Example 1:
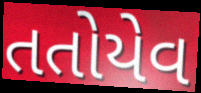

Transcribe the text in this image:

તતોયેવ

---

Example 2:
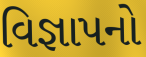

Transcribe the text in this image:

વિજ્ઞાપનો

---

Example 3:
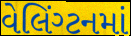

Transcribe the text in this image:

વેલિંગ્ટનમાં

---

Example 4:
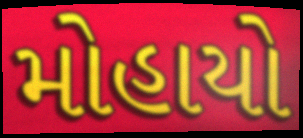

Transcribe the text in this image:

મોહાયો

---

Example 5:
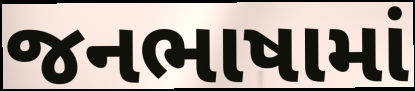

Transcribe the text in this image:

જનભાષામાં